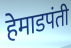
हेमाडपंती